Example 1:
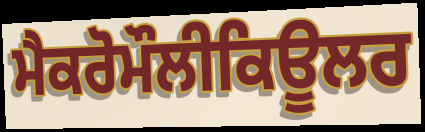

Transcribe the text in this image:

ਮੈਕਰੋਮੌਲੀਕਿਊਲਰ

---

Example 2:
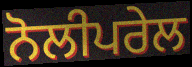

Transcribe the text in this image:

ਨੋਲੀਪਰੇਲ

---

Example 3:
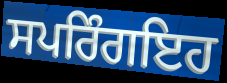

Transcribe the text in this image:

ਸਪਰਿੰਗਇਹ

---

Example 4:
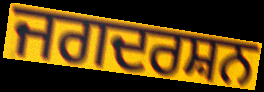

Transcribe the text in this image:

ਜਗਦਰਸ਼ਨ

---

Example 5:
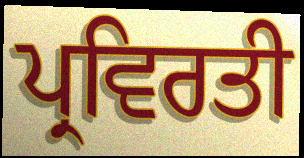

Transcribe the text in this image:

ਪ੍ਰਵਿਰਤੀ